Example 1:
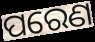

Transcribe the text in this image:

ପରେଣ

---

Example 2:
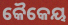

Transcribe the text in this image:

କୈକେୟ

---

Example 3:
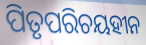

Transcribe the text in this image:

ପିତୃପରିଚୟହୀନ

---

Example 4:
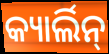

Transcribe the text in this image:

କ୍ୟାର୍ଲିନ୍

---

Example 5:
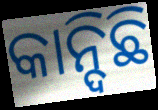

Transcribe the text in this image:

କାନ୍ଦିଛି